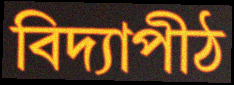
বিদ্যাপীঠ